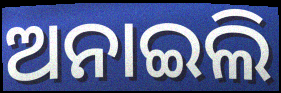
ଅନାଇଲି